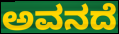
ಅವನದೆ